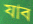
যাব